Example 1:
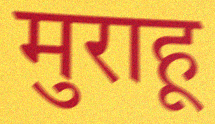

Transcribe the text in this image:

मुराहू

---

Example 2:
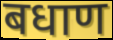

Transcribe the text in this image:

बधाण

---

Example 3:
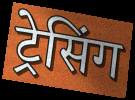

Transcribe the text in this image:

ट्रेसिंग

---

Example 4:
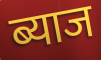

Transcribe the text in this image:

ब्‍याज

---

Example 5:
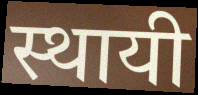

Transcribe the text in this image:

स्‍थायी